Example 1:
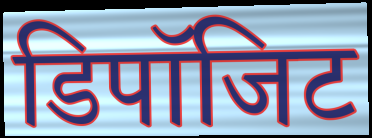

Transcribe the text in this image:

डिपॉजिट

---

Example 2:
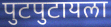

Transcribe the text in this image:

पुटपुटायला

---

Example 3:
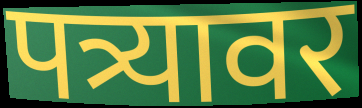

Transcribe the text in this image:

पत्र्यावर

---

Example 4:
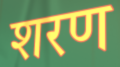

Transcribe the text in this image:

शरण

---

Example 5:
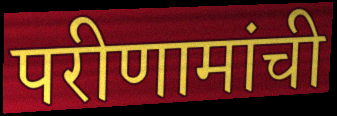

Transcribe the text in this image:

परीणामांची